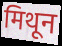
मिथून